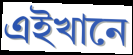
এইখানে